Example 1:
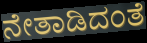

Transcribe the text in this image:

ನೇತಾಡಿದಂತೆ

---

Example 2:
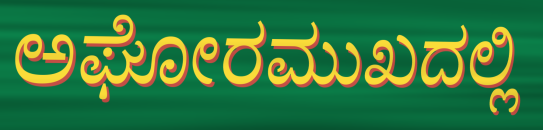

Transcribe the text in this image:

ಅಘೋರಮುಖದಲ್ಲಿ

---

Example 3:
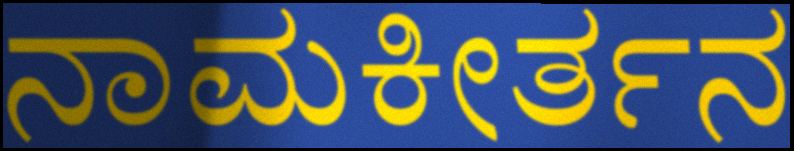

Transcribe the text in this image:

ನಾಮಕೀರ್ತನ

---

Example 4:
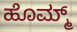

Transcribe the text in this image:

ಹೊಮ್ಮ್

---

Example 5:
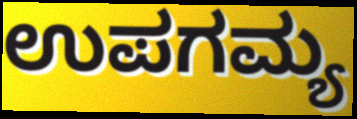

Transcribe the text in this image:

ಉಪಗಮ್ಯ